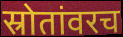
स्रोतांवरच